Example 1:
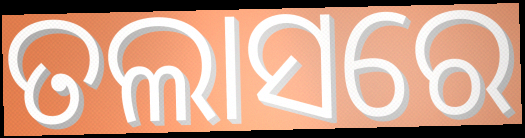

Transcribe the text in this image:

ତଲାସରେ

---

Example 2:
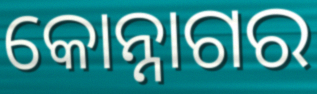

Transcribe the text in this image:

କୋନ୍ନାଗର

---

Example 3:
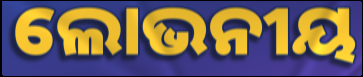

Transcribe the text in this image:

ଲୋଭନୀୟ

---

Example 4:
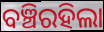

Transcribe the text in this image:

ବଞ୍ଚିରହିଲା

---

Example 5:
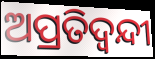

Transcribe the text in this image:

ଅପ୍ରତିଦ୍ବନ୍ଦୀ